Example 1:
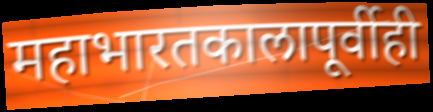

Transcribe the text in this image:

महाभारतकालापूर्वीही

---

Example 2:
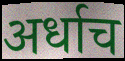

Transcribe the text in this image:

अर्धाच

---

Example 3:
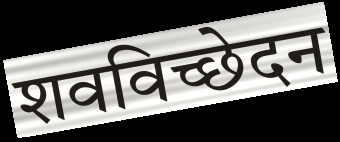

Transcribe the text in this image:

शवविच्छेदन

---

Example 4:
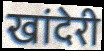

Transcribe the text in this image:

खांदेरी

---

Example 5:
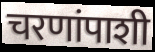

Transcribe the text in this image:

चरणांपाशी